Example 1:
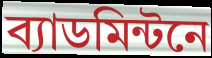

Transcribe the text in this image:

ব্যাডমিন্টনে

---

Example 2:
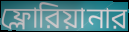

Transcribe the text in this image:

ফ্লোরিয়ানার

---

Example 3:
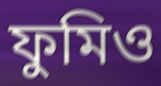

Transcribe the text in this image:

ফুমিও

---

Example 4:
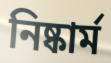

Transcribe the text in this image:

নিষ্কার্ম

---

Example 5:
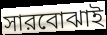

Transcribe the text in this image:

সারবোঝাই